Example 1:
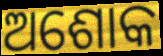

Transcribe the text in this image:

ଅଶୋକ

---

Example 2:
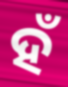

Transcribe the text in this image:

ହଁ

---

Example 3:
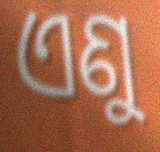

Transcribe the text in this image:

ଏଣୁ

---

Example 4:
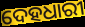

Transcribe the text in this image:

ଦେହଧାରୀ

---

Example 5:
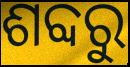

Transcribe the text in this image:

ଶବ୍ଦରୁ